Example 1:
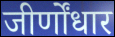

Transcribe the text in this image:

जीर्णोंधार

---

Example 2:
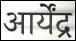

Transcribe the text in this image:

आर्येंद्र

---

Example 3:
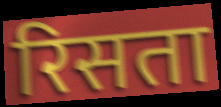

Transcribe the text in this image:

रिसता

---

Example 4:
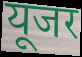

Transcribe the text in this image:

यूजर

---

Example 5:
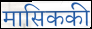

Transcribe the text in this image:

मासिककी